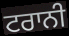
ਟਰਾਨੀ